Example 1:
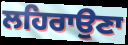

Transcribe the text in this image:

ਲਹਿਰਾਉਣਾ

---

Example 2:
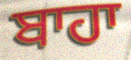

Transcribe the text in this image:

ਬਾਹਾ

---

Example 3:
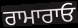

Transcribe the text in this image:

ਰਾਮਾਰਾਓ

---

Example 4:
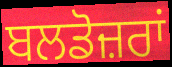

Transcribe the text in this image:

ਬਲਡੋਜ਼ਰਾਂ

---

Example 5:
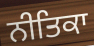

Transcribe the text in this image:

ਨੀਤਿਕਾ